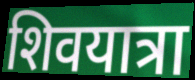
शिवयात्रा